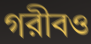
গরীবও